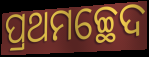
ପ୍ରଥମଚ୍ଛେଦ